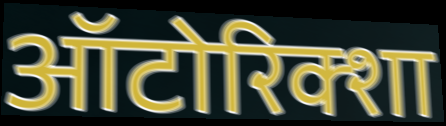
ऑटोरिक्‍शा